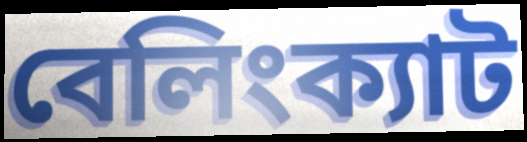
বেলিংক্যাট